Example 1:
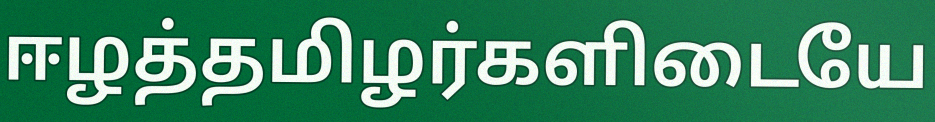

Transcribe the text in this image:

ஈழத்தமிழர்களிடையே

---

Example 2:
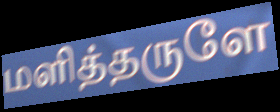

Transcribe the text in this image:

மளித்தருளே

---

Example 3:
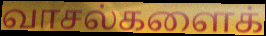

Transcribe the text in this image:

வாசல்களைக்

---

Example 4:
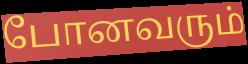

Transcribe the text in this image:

போனவரும்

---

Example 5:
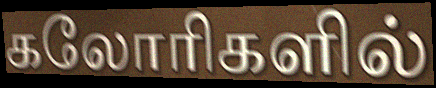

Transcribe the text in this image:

கலோரிகளில்